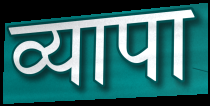
व्यापा